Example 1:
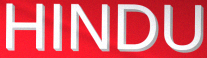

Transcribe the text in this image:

HINDU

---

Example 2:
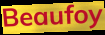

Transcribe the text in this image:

Beaufoy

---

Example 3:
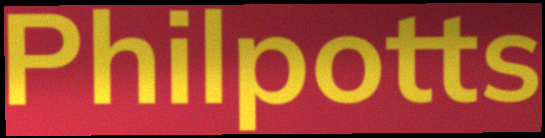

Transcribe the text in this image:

Philpotts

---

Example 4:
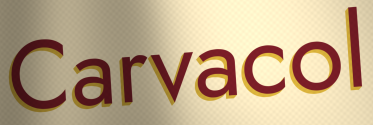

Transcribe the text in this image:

Carvacol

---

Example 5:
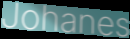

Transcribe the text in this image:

Johanes